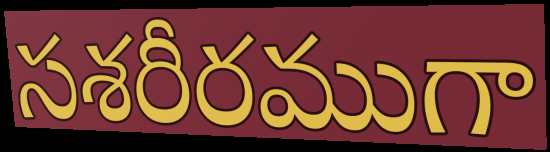
సశరీరముగా